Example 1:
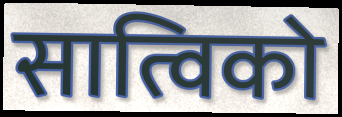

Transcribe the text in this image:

सात्विको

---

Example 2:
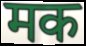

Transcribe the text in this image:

मक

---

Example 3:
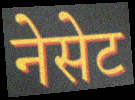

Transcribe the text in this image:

नेसेट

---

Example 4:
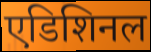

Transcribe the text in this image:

एडिशिनल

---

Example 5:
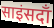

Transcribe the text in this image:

साइंसदाँ